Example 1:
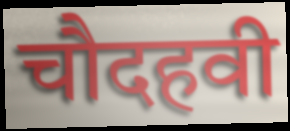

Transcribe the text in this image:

चौदहवी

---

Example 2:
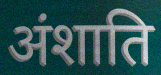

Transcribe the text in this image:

अंशाति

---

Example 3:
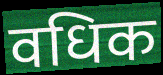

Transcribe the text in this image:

वधिक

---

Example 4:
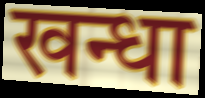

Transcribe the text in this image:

खन्धा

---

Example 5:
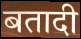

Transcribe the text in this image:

बतादी